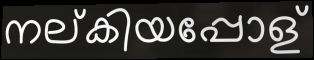
നല്കിയപ്പോള്